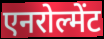
एनरोल्मेंट